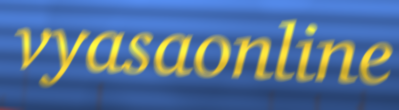
vyasaonline